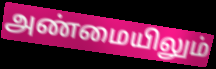
அண்மையிலும்